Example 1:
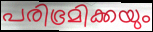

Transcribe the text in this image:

പരിഭ്രമിക്കയും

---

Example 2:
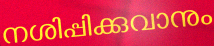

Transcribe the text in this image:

നശിപ്പിക്കുവാനും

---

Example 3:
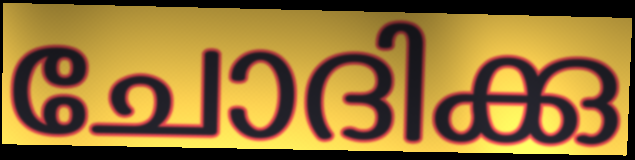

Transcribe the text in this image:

ചോദിക്കു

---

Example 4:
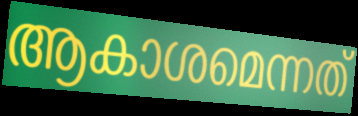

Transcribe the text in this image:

ആകാശമെന്നത്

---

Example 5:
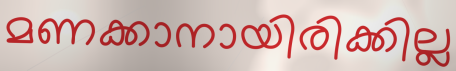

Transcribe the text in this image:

മണക്കാനായിരിക്കില്ല